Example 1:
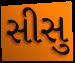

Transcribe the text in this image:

સીસુ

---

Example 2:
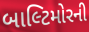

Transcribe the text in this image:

બાલ્ટિમોરની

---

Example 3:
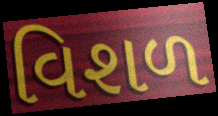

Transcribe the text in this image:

વિશળ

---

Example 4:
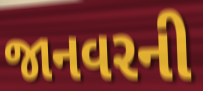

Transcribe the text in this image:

જાનવરની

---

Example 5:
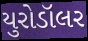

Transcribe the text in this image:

યુરોડૉલર